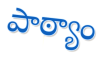
పాఠ్యాం